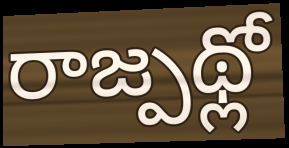
రాజ్పథ్లో